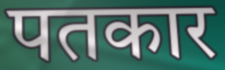
पतकार